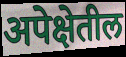
अपेक्षेतील